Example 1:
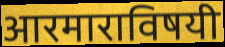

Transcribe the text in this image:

आरमाराविषयी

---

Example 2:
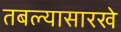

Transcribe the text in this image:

तबल्यासारखे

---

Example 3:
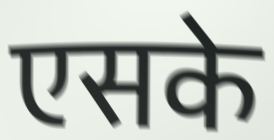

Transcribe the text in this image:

एसके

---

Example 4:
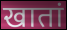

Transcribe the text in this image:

खातां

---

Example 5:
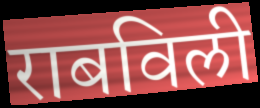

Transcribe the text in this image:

राबविली